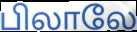
பிலாலே